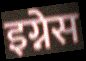
इग्नेस